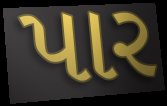
પાર